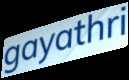
gayathri